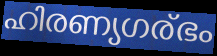
ഹിരണ്യഗര്ഭം